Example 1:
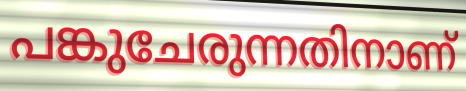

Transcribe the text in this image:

പങ്കുചേരുന്നതിനാണ്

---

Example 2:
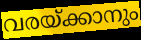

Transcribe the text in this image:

വരയ്ക്കാനും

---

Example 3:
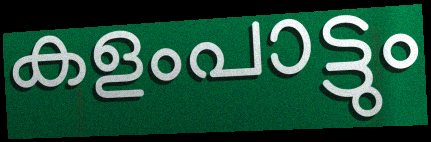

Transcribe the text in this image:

കളംപാട്ടും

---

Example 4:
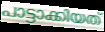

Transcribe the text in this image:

പാട്ടാക്കിയത്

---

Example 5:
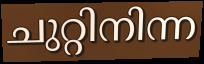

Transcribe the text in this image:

ചുറ്റിനിന്ന